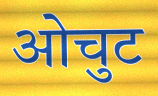
ओचुट